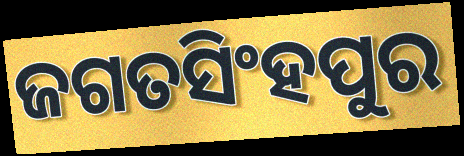
ଜଗତସିଂହପୁର